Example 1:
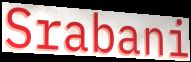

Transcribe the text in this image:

Srabani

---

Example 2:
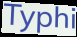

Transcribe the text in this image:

Typhi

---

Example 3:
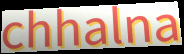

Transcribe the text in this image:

chhalna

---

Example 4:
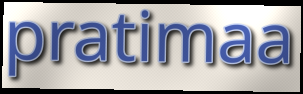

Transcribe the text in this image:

pratimaa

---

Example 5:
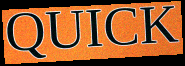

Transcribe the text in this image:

QUICK